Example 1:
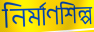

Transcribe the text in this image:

নির্মাণশিল্প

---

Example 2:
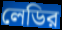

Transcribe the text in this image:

লেডির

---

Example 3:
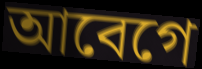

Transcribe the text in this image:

আবেগে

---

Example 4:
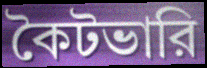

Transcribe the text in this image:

কৈটভারি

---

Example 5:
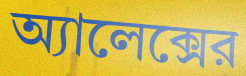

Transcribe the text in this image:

অ্যালেক্সের